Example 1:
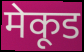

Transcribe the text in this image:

मेकूड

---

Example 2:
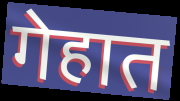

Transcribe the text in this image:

गेहात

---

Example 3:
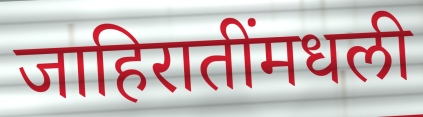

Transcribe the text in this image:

जाहिरातींमधली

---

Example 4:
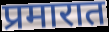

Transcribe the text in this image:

प्रमारात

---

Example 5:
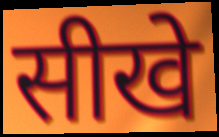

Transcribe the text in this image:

सीखे